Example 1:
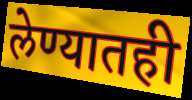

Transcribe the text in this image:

लेण्यातही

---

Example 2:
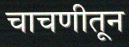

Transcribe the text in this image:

चाचणीतून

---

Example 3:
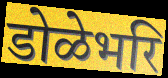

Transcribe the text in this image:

डोळेभरि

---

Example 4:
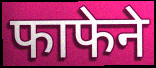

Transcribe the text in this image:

फाफेने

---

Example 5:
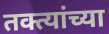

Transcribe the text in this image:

तक्त्यांच्या